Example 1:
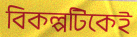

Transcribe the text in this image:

বিকল্পটিকেই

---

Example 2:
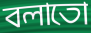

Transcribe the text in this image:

বলাতো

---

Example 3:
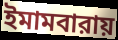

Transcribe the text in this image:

ইমামবারায়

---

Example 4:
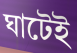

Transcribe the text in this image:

ঘাটেই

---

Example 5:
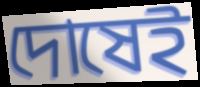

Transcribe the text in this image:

দোষেই